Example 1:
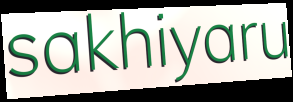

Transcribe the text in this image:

sakhiyaru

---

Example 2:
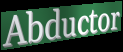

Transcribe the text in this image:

Abductor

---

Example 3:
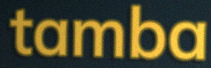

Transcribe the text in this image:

tamba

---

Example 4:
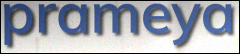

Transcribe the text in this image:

prameya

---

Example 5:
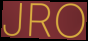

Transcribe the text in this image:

JRO